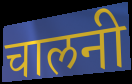
चालनी